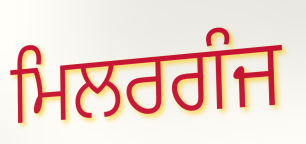
ਮਿਲਰਗੰਜ